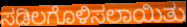
ಸಡಿಲಗೊಳಿಸಲಾಯಿತು